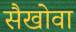
सैखोवा